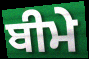
ਬੀਮੇ